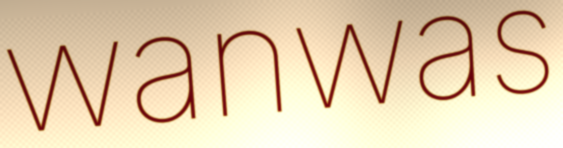
wanwas